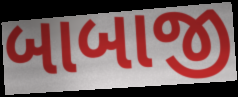
બાબાજી